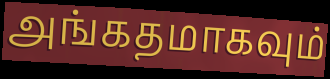
அங்கதமாகவும்